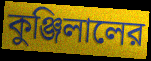
কুঞ্জিলালের